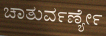
ಚಾತುರ್ವರ್ಣ್ಯೇ